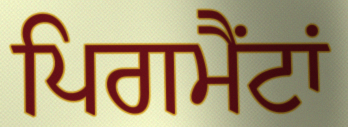
ਪਿਗਮੈਂਟਾਂ